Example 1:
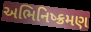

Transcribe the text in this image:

અભિનિષ્ક્રમણ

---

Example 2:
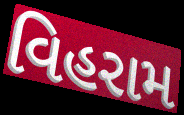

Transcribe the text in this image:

વિહરામ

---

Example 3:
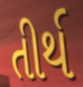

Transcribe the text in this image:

તીર્થ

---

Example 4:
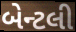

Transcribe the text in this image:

બેન્ટલી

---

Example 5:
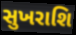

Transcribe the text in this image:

સુખરાશિ